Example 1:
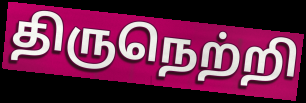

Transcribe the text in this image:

திருநெற்றி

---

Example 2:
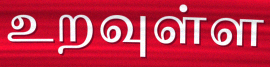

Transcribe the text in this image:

உறவுள்ள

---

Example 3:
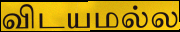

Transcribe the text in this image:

விடயமல்ல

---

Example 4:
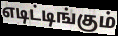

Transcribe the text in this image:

எடிட்டிங்கும்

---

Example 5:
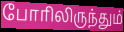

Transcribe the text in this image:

போரிலிருந்தும்